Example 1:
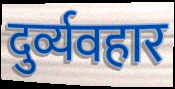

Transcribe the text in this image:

दुर्व्यवहार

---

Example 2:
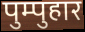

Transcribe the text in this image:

पुम्पुहार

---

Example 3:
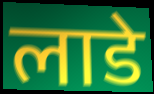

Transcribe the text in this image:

लाडे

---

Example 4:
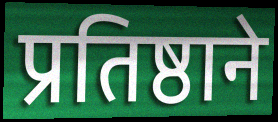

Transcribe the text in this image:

प्रतिष्ठाने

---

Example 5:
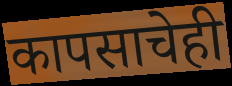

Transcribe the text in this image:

कापसाचेही